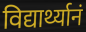
विद्यार्थ्यानं